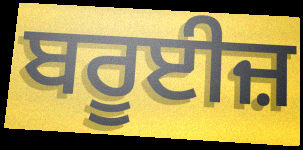
ਬਰੂਈਜ਼